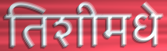
तिशीमधे